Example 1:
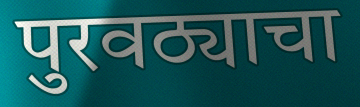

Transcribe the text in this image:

पुरवठ्याचा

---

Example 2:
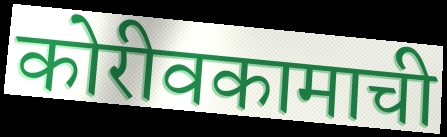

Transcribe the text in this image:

कोरीवकामाची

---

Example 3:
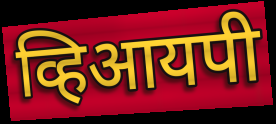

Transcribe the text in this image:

व्हिआयपी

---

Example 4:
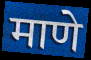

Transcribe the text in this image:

माणे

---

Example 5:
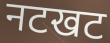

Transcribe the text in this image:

नटखट